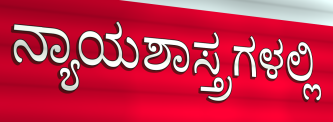
ನ್ಯಾಯಶಾಸ್ತ್ರಗಳಲ್ಲಿ